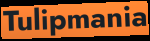
Tulipmania